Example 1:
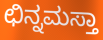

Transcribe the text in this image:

ಛಿನ್ನಮಸ್ತಾ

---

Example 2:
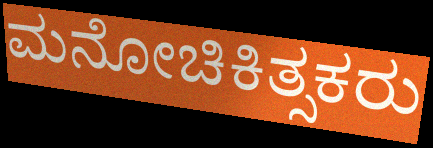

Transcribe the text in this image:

ಮನೋಚಿಕಿತ್ಸಕರು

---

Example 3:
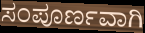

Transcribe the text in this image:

ಸಂಪೂರ್ಣವಾಗಿ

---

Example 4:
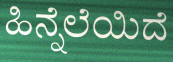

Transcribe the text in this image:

ಹಿನ್ನೆಲೆಯಿದೆ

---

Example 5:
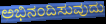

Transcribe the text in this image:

ಅಭಿನಂದಿಸುವುದು